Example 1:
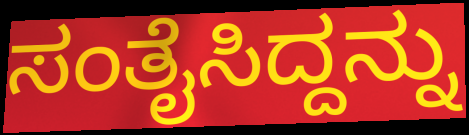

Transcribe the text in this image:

ಸಂತೈಸಿದ್ದನ್ನು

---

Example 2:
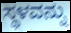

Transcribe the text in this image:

ಸ್ಥಳವನ್ನು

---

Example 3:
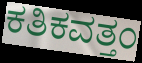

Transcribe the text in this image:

ಕತಿಕವತ್ತಂ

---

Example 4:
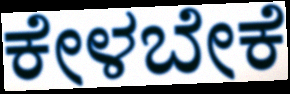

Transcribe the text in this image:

ಕೇಳಬೇಕೆ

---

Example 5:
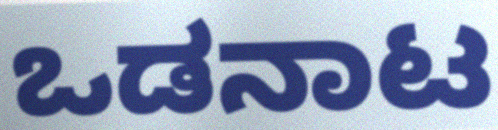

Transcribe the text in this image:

ಒಡನಾಟ